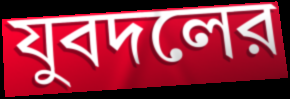
যুবদলের